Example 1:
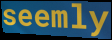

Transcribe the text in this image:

seemly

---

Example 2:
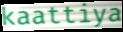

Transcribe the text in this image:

kaattiya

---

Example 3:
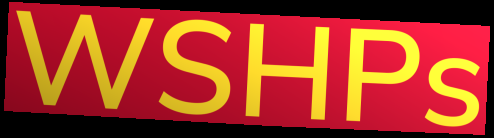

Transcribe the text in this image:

WSHPs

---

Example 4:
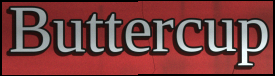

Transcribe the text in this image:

Buttercup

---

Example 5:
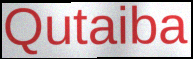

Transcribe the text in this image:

Qutaiba